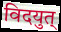
विदयुत्